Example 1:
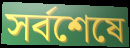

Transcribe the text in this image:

সর্বশেষে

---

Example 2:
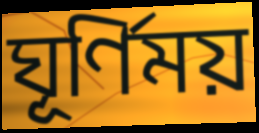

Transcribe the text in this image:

ঘূর্ণিময়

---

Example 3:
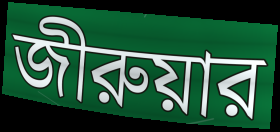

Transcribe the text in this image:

জীরুয়ার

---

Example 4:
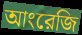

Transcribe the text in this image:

আংরেজি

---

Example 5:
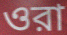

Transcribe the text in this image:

ওরা